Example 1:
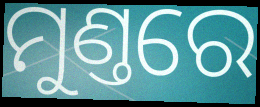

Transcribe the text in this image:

ମୁଣ୍ତରେ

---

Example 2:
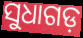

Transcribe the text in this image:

ସୁଧାଗଡ଼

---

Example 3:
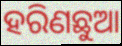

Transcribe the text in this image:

ହରିଣଛୁଆ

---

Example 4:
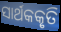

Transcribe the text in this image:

ସାର୍ଥକକୃତି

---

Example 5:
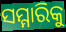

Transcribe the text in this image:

ସମ୍ମାରିକୁ